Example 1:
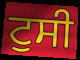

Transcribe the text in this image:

ਟੁਸੀ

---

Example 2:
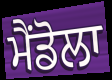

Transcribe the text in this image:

ਮੈਂਡੋਲਾ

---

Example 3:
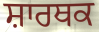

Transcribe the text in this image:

ਸ਼ਾਰਥਕ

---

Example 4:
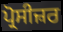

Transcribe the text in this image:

ਪ੍ਰੋਸੀਜ਼ਰ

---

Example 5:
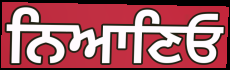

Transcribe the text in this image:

ਨਿਆਣਿਓ